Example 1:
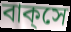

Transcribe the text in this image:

বাক্‌সে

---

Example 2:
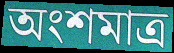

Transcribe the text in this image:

অংশমাত্র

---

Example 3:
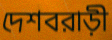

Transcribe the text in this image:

দেশবরাড়ী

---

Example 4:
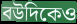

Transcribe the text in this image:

বউদিকেও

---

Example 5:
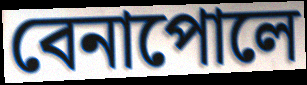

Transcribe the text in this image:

বেনাপোলে